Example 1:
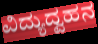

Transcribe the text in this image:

ವಿದ್ಯುದ್ವಹನ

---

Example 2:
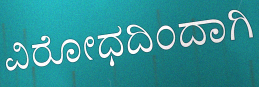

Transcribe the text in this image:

ವಿರೋಧದಿಂದಾಗಿ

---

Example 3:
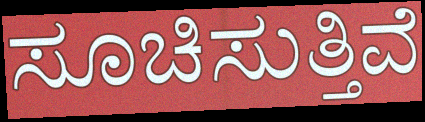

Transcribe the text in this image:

ಸೂಚಿಸುತ್ತಿವೆ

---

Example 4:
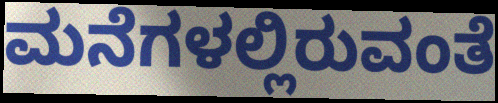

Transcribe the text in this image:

ಮನೆಗಳಲ್ಲಿರುವಂತೆ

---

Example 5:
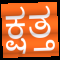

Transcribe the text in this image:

ಕ್ಷತ್ತ